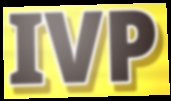
IVP